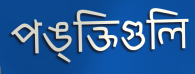
পঙ্‌ক্তিগুলি